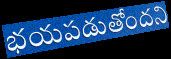
భయపడుతోందని